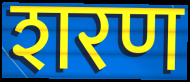
शरण